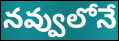
నవ్వులోనే